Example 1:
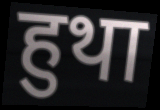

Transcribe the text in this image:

हुथा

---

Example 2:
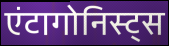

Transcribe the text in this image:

एंटागोनिस्ट्स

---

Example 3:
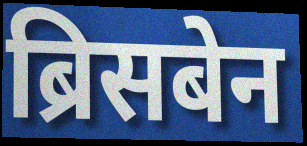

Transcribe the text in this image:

ब्रिसबेन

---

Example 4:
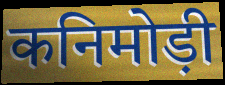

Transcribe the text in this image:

कनिमोड़ी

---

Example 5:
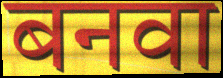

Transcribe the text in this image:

बनवा